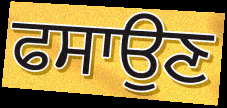
ਫਸਾਉਣ